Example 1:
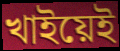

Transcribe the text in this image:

খাইয়েই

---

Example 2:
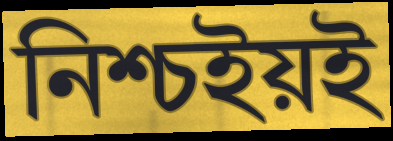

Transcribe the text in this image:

নিশ্চইয়ই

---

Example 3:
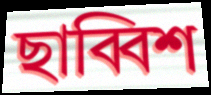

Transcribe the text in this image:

ছাব্বিশ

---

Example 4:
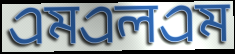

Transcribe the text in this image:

এমএলএম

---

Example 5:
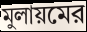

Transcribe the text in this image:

মুলায়মের